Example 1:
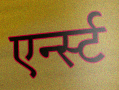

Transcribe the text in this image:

एर्न्स्ट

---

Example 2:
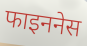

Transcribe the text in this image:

फाइननेस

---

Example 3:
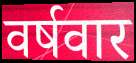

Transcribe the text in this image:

वर्षवार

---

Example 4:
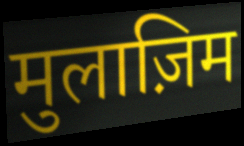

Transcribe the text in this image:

मुलाज़िम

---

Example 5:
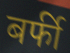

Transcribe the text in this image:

बर्फी